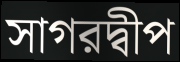
সাগরদ্বীপ